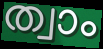
ത്വാം